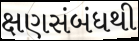
ક્ષણસંબંધથી